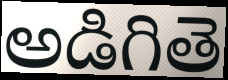
అడిగితె